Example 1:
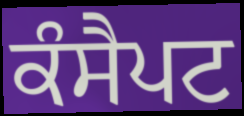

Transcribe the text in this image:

ਕੰਸੈਪਟ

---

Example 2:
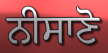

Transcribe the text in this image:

ਨੀਸਾਣੋ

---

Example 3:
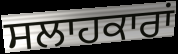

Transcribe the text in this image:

ਸਲਾਹਕਾਰਾਂ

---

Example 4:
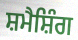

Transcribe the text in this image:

ਸ਼ਮੈਸ਼ਿੰਗ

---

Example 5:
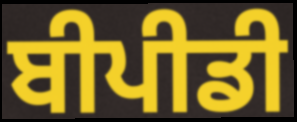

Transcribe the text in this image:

ਬੀਪੀਡੀ